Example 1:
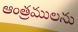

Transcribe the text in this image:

ఆంత్రములను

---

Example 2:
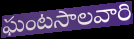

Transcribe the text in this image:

ఘంటసాలవారి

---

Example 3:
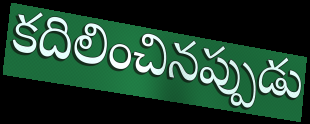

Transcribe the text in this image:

కదిలించినప్పుడు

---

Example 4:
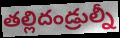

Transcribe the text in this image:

తల్లిదండ్రుల్నీ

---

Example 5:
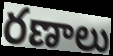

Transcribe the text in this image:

రణాలు